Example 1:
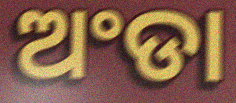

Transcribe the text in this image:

ଅଂଡା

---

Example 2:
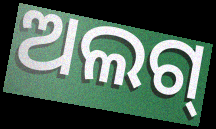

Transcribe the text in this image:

ଅଲଗ୍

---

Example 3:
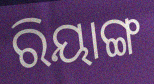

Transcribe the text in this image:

ରିୟାଙ୍ଗ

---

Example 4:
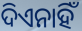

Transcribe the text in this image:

ଦିଏନାହିଁ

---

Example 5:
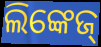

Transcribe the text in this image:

ଲିଙ୍କେଜ୍